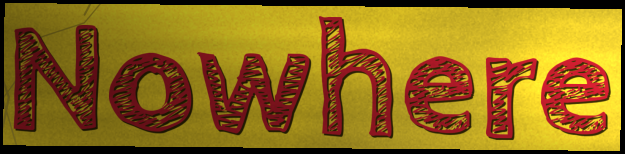
Nowhere